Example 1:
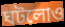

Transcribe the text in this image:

ঘটলোও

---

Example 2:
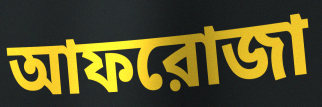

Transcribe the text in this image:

আফরোজা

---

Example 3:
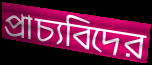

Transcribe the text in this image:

প্রাচ্যবিদের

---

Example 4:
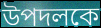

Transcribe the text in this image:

উপদলকে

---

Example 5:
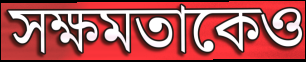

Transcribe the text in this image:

সক্ষমতাকেও